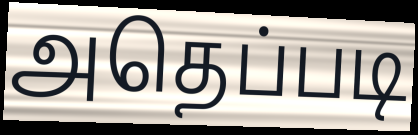
அதெப்படி